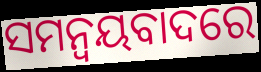
ସମନ୍ୱୟବାଦରେ